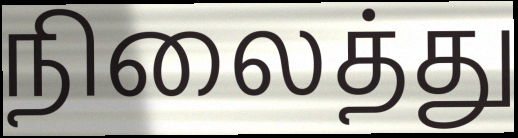
நிலைத்து